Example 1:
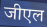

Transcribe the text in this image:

जीएल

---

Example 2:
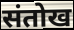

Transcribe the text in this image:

संतोख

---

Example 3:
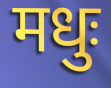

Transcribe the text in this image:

मधुः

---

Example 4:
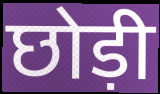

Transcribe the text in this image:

छोड़ी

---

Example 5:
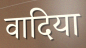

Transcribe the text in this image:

वादिया